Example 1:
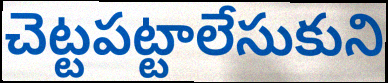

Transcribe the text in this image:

చెట్టపట్టాలేసుకుని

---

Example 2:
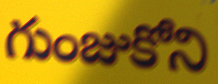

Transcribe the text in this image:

గుంజుకోని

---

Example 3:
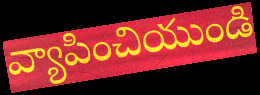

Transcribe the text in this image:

వ్యాపించియుండి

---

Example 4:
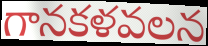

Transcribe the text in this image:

గానకళవలన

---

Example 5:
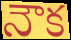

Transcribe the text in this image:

నౌక